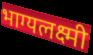
भाग्यलक्ष्मी